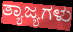
ತ್ಯಾಜ್ಯಗಳು